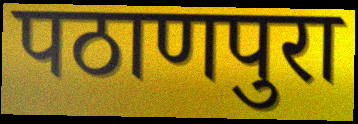
पठाणपुरा